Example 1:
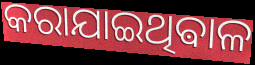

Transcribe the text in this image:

କରାଯାଇଥିଵାଳ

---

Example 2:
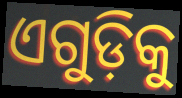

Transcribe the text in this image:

ଏଗୁଡ଼ିକୁ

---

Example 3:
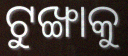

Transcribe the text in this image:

ଟୁଙ୍ଖାକୁ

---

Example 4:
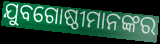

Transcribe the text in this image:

ଯୁବଗୋଷ୍ଠୀମାନଙ୍କର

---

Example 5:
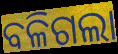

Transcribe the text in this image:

ବଳିଗଲା